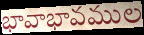
భావాభావముల